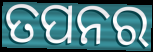
ତପନର